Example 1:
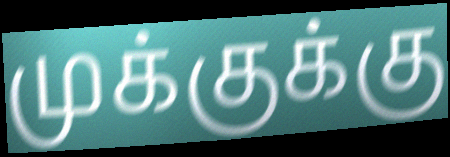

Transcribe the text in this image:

முக்குக்கு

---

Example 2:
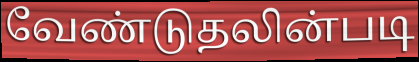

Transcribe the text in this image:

வேண்டுதலின்படி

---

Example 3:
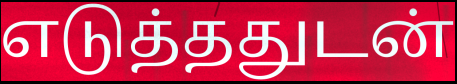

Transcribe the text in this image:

எடுத்ததுடன்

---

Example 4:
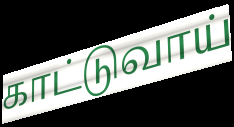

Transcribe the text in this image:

காட்டுவாய்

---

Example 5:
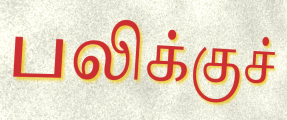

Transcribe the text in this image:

பலிக்குச்